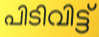
പിടിവിട്ട്